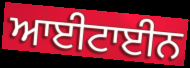
ਆਈਟਾਈਨ